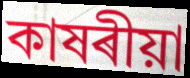
কাষৰীয়া